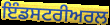
ਇੰਡਸਟਰੀਅਰਲ